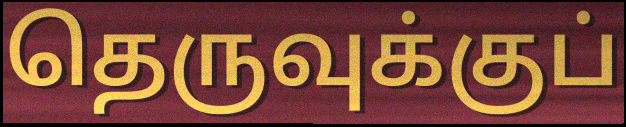
தெருவுக்குப்